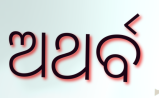
ଅଥର୍ବ